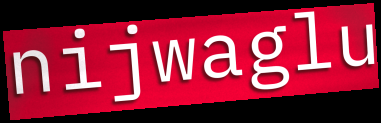
nijwaglu